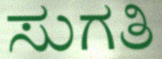
ಸುಗತಿ